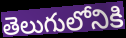
తెలుగులోనికి